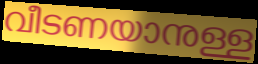
വീടണയാനുള്ള